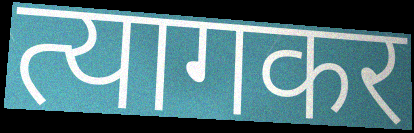
त्यागकर